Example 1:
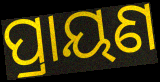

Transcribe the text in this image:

ପ୍ରାୟଣ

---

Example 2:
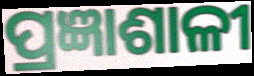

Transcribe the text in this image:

ପ୍ରଜ୍ଞାଶାଳୀ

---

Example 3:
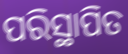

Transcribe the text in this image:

ପରିସ୍ଥାପିତ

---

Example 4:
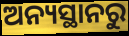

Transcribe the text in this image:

ଅନ୍ୟସ୍ଥାନରୁ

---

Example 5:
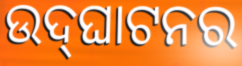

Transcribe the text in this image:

ଉଦ୍‍ଘାଟନର